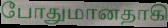
போதுமானதாகி